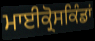
ਮਾਈਕ੍ਰੋਸਕਿੰਡਾਂ